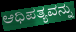
ಆಧಿಪತ್ಯವನ್ನು